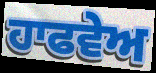
ਹਾਫਵੇਅ